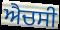
ਐਚਸੀ